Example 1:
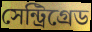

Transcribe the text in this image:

সেন্ট্রিগ্রেড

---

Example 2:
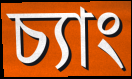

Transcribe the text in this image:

চ্যাং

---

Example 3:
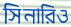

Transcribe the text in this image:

সিনারিও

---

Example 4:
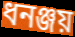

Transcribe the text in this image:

ধনঞ্জয়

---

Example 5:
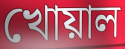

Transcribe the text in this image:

খোয়াল